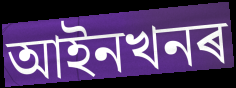
আইনখনৰ